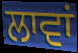
ਲਾਵਾਂ